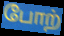
போற்